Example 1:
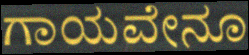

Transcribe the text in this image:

ಗಾಯವೇನೂ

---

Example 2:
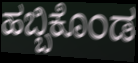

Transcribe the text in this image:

ಹಬ್ಬಿಕೊಂಡ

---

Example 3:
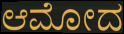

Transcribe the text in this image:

ಆಮೋದ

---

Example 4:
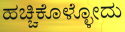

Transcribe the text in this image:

ಹಚ್ಚಿಕೊಳ್ಳೋದು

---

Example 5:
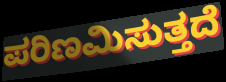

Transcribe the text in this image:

ಪರಿಣಮಿಸುತ್ತದೆ